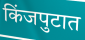
किंजपुटात